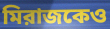
মিরাজকেও